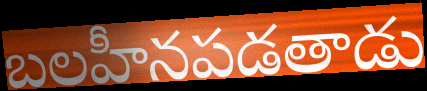
బలహీనపడతాడు